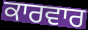
ਕਾਰਵਾਰ